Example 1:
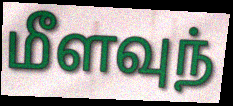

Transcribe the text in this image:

மீளவுந்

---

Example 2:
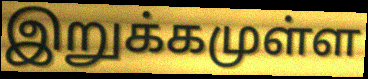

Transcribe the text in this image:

இறுக்கமுள்ள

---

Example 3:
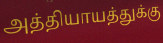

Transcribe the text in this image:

அத்தியாயத்துக்கு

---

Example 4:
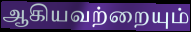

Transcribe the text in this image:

ஆகியவற்றையும்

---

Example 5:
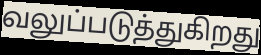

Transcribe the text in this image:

வலுப்படுத்துகிறது